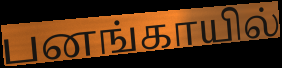
பனங்காயில்